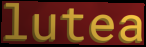
lutea